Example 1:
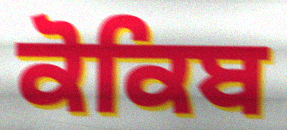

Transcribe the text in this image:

ਕੋਕਿਬ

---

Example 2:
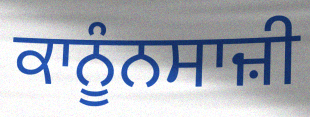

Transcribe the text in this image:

ਕਾਨੂੰਨਸਾਜ਼ੀ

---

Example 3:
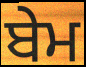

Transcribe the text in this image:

ਬੇਮ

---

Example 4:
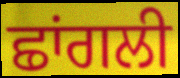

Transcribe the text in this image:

ਛਾਂਗਲੀ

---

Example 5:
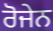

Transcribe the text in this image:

ਰੋਜੇਨ